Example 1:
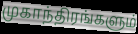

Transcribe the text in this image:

முகாந்திரங்களும்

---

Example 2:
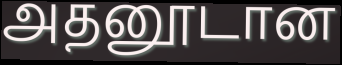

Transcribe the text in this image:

அதனூடான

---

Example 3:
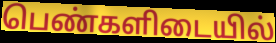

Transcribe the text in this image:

பெண்களிடையில்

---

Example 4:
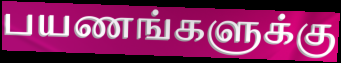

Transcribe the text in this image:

பயணங்களுக்கு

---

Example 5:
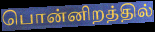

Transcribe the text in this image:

பொன்னிறத்தில்